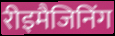
रीइमैजिनिंग